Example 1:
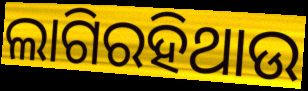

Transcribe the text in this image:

ଲାଗିରହିଥାଉ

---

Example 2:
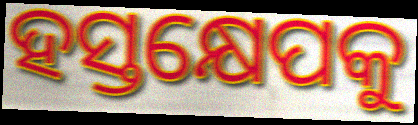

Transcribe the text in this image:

ହସ୍ତକ୍ଷେପକୁ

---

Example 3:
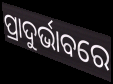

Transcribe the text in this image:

ପ୍ରାଦୁର୍ଭାବରେ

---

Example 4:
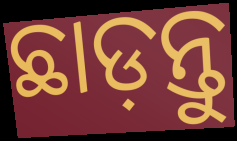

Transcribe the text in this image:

ଛାଡ଼ନ୍ତୁ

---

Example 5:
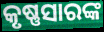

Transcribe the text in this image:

କୃଷ୍ଣସାରଙ୍କ